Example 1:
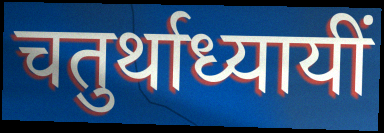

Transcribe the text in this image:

चतुर्थाध्यायीं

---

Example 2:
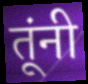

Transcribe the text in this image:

तूंनी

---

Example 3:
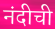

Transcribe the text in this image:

नंदीची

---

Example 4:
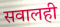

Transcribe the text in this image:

सवालही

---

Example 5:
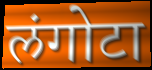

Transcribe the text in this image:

लंगोटा